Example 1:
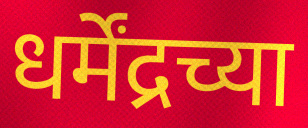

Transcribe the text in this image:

धर्मेंद्रच्या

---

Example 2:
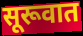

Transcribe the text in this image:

सूरूवात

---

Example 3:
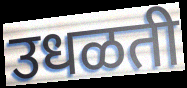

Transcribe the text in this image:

उधळती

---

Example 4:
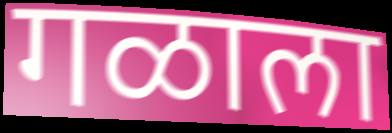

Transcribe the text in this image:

गळाला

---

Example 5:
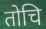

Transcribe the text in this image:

तोचि